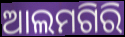
ଆଲମଗିରି